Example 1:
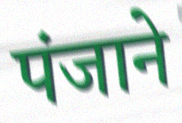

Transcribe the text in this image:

पंजाने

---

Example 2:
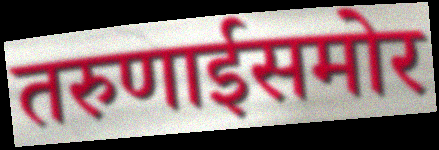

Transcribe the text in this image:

तरुणाईसमोर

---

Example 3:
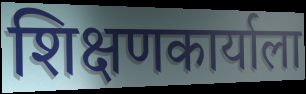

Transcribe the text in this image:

शिक्षणकार्याला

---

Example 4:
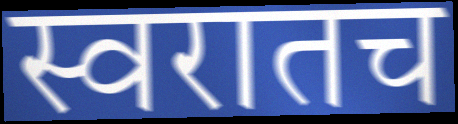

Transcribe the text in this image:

स्वरातच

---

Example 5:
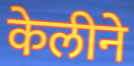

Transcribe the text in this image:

केलीने